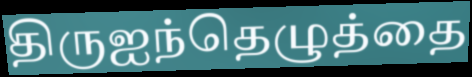
திருஐந்தெழுத்தை